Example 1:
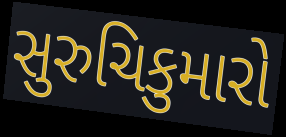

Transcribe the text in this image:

સુરુચિકુમારો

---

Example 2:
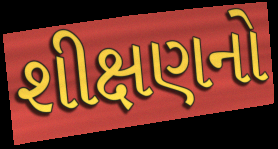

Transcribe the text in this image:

શીક્ષણનો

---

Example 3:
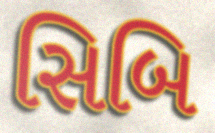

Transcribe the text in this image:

સિબિ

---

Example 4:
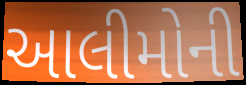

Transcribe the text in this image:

આલીમોની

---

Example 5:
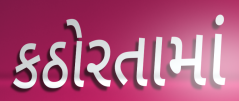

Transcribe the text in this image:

કઠોરતામાં